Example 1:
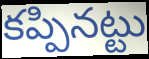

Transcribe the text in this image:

కప్పినట్టు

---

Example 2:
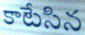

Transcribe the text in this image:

కాటేసిన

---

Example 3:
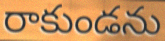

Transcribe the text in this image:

రాకుండను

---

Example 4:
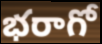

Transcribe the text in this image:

భరాగో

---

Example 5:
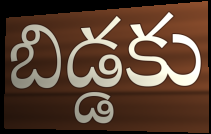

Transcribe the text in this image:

బిడ్డకు